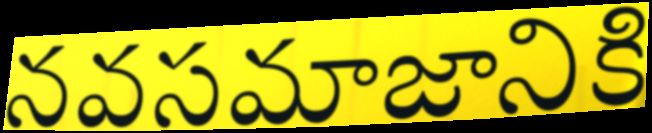
నవసమాజానికి